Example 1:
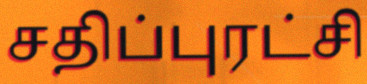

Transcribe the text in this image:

சதிப்புரட்சி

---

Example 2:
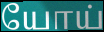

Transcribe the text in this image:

யோய்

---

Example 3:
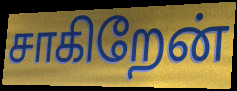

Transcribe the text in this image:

சாகிறேன்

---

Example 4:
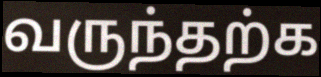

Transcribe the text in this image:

வருந்தற்க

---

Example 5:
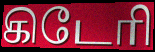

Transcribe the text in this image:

கிடேரி